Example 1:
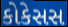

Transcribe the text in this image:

કોકેસસ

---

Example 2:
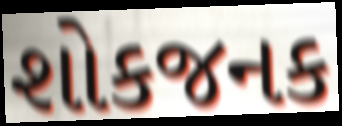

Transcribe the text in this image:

શોકજનક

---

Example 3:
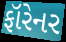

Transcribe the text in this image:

ફૉરેનર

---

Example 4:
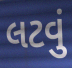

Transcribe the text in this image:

લટવું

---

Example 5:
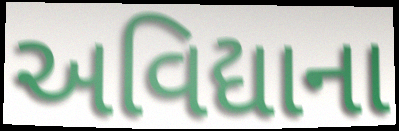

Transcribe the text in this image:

અવિદ્યાના